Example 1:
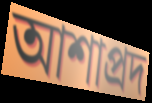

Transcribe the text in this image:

আশাপ্রদ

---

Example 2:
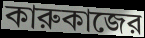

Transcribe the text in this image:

কারুকাজের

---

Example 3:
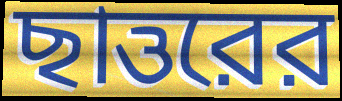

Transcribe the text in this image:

ছাত্তরের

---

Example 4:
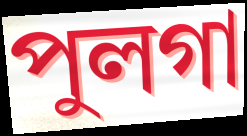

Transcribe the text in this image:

পুলগা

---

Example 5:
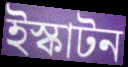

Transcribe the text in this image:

ইস্কাটন